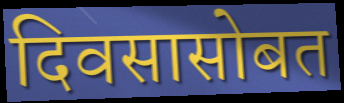
दिवसासोबत